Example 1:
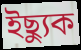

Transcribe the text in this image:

ইছ্যুক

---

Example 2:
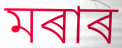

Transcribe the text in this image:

মৰাৰ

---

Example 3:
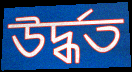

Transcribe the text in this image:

উৰ্দ্ধত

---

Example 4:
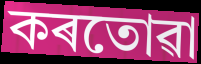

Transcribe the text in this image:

কৰতোৱা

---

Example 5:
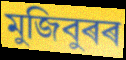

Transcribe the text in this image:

মুজিবুৰৰ